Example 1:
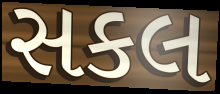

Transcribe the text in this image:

સકલ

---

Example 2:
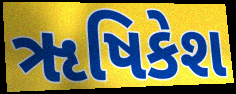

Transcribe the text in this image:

ૠષિકેશ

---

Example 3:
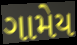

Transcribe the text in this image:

ગામેય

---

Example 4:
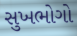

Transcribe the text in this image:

સુખભોગો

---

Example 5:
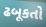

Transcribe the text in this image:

ઢબૂકતો